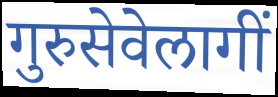
गुरुसेवेलागीं